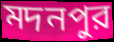
মদনপুর